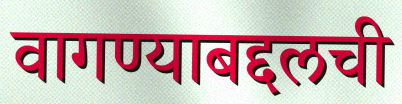
वागण्याबद्दलची